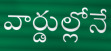
వార్డుల్లోనే